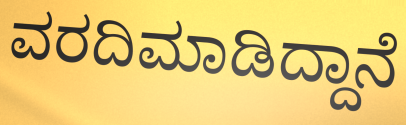
ವರದಿಮಾಡಿದ್ದಾನೆ